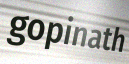
gopinath